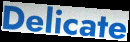
Delicate